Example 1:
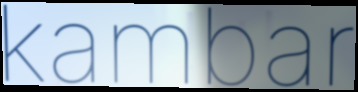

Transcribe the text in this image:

kambar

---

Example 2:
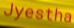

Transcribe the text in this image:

Jyestha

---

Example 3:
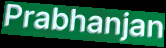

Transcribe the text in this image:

Prabhanjan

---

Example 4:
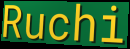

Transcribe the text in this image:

Ruchi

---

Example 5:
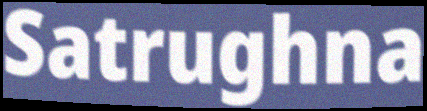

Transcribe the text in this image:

Satrughna